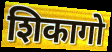
शिकागो